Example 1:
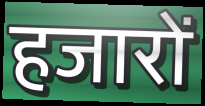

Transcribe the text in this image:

हजारों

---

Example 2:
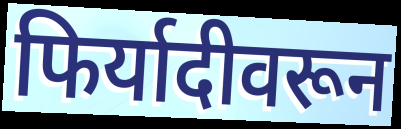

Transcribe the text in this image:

फिर्यादीवरून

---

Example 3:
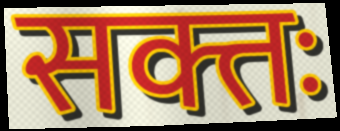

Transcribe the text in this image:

सक्तः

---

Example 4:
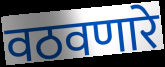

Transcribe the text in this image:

वठवणारे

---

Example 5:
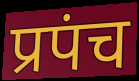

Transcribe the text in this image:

प्रपंच